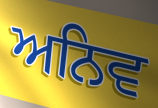
ਅਨਿਵ